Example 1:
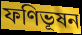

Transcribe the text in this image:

ফণিভূষন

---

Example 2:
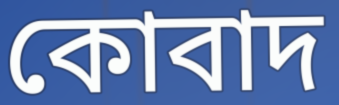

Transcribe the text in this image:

কোবাদ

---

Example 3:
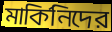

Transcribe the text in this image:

মার্কিনিদের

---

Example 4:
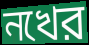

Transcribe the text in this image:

নখের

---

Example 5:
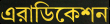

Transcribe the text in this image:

এরাডিকেশন